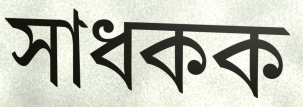
সাধকক